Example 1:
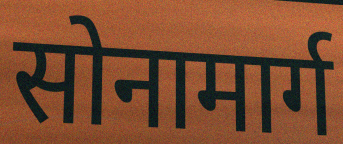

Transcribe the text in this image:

सोनामार्ग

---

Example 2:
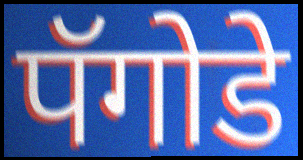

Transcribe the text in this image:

पॅगोडे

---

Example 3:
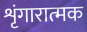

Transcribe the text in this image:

शृंगारात्मक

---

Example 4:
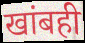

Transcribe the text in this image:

खांबही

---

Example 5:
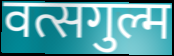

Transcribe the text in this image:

वत्सगुल्म